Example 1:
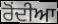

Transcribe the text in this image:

ਰੋਂਦੀਆ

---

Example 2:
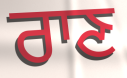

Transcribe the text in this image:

ਰਾਣ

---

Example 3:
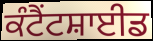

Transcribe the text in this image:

ਕੰਟੈਂਟਸ਼ਾਈਡ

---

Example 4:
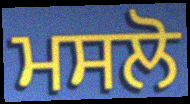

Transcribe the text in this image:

ਮਸਲੋ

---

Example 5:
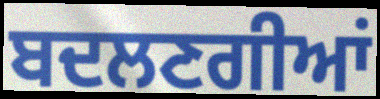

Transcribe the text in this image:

ਬਦਲਣਗੀਆਂ